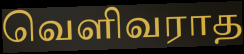
வெளிவராத